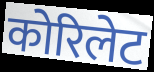
कोरिलेट